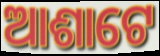
ଆଶାଟେ